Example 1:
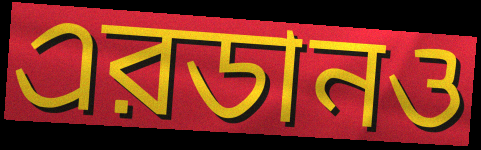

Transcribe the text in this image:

এরডানও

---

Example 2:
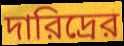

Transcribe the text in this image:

দারিদ্রের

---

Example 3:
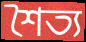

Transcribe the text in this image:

শৈত্য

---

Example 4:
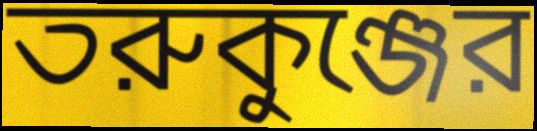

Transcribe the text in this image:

তরুকুঞ্জের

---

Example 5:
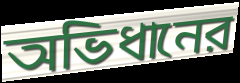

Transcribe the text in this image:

অভিধানের